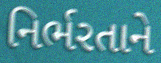
નિર્ભરતાને